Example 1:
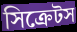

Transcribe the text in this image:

সিক্রেটস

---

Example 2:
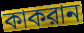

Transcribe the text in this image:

কাকরান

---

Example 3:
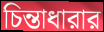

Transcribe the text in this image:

চিন্তাধারার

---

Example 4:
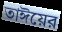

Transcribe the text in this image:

তাঈয়ের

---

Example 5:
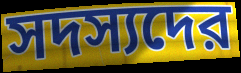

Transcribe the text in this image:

সদস্যদের